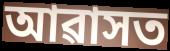
আৱাসত